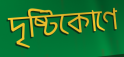
দৃষ্টিকোণে